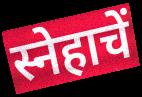
स्नेहाचें